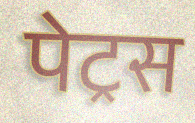
पेट्रस